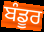
ਬੰਡੂਰ